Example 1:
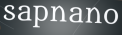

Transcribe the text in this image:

sapnano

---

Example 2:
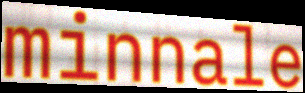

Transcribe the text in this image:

minnale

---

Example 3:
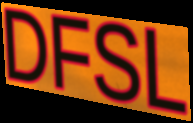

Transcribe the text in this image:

DFSL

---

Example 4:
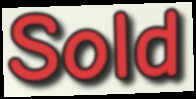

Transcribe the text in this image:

Sold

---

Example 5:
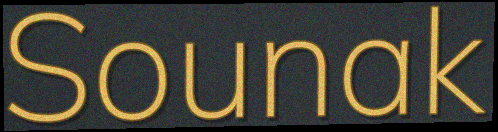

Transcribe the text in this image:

Sounak